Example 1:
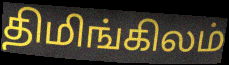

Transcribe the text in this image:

திமிங்கிலம்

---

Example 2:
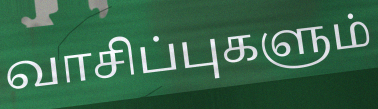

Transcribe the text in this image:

வாசிப்புகளும்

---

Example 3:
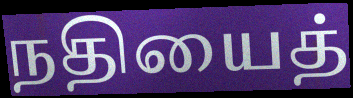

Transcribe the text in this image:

நதியைத்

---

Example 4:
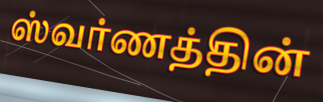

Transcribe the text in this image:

ஸ்வர்ணத்தின்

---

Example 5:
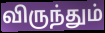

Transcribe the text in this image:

விருந்தும்